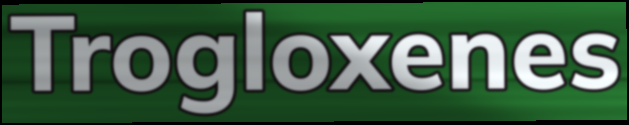
Trogloxenes